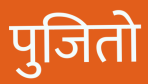
पुजितो